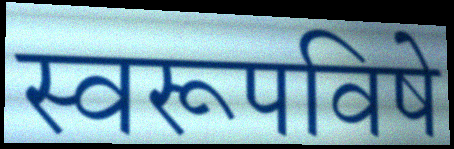
स्वरूपविषे